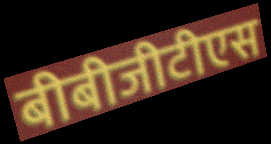
बीबीजीटीएस